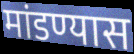
मांडण्यास